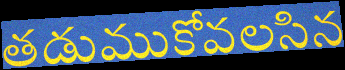
తడుముకోవలసిన